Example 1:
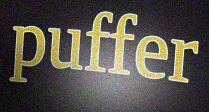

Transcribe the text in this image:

puffer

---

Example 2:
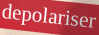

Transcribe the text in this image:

depolariser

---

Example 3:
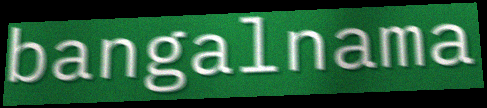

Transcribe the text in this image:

bangalnama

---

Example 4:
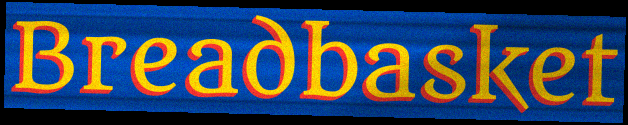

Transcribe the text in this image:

Breadbasket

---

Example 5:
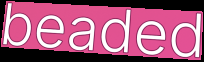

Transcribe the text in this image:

beaded